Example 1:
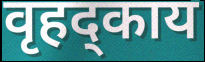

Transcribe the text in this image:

वृहद्काय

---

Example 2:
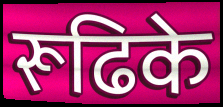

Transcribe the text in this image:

रूढिके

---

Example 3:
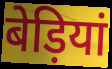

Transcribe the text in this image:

बेड़ियां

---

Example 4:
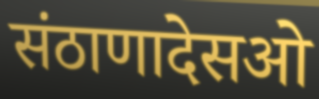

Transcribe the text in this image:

संठाणादेसओ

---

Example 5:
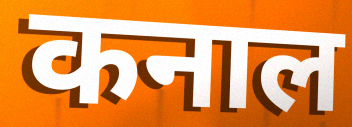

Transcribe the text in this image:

कनाल